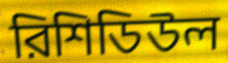
রিশিডিউল